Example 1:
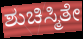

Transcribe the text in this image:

ಶುಚಿಸ್ಮಿತೇ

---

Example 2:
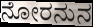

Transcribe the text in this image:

ನೋರನುನ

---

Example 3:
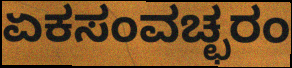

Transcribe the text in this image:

ಏಕಸಂವಚ್ಛರಂ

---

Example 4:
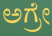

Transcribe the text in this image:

ಅಗ್ರೇ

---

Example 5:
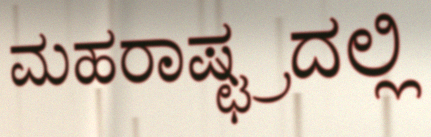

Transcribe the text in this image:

ಮಹರಾಷ್ಟ್ರದಲ್ಲಿ